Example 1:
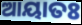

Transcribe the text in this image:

ଆୟାତଃ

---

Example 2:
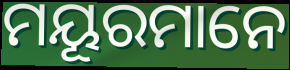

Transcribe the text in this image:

ମୟୂରମାନେ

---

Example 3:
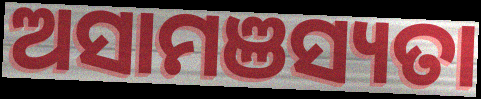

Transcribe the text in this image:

ଅସାମଞସ୍ୟତା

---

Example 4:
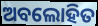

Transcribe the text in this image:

ଅବଲୋହିତ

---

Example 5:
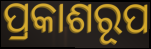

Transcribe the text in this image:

ପ୍ରକାଶରୂପ